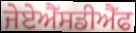
ਜੇਏਐੱਸਡੀਐੱਫ